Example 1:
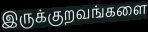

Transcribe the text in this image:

இருக்குறவங்களை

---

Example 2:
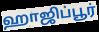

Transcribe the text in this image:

ஹாஜிப்பூர்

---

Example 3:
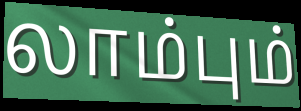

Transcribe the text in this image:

லாம்பும்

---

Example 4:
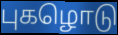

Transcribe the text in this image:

புகழொடு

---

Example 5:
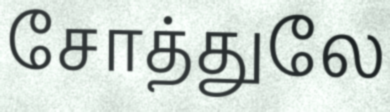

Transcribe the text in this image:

சோத்துலே